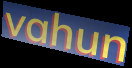
vahun